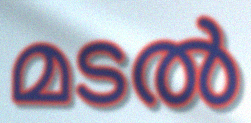
മടൽ